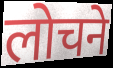
लोचने